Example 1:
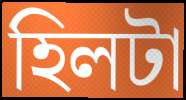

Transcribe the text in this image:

হিলটা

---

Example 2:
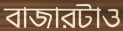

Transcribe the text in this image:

বাজারটাও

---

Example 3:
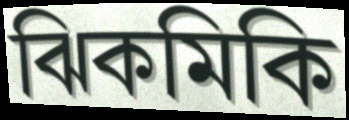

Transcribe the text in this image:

ঝিকমিকি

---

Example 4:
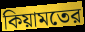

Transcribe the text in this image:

কিয়ামতের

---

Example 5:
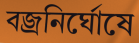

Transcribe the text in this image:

বজ্রনির্ঘোষে